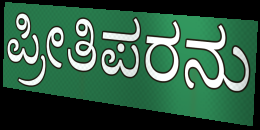
ಪ್ರೀತಿಪರನು